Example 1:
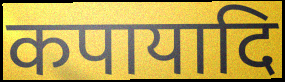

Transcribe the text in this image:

कपायादि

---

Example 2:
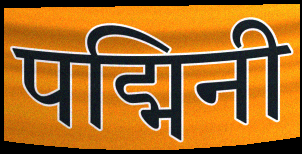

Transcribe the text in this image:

पद्मिनी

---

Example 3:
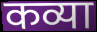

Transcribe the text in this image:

कव्या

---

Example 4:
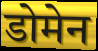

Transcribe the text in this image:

डोमेन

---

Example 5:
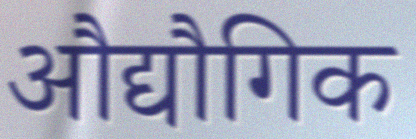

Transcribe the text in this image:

औद्यौगिक